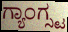
ಗ್ಯಾಂಗ್ಸ್ಟ